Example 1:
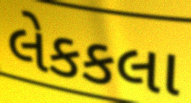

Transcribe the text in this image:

લેકકલા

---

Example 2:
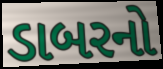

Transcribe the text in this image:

ડાબરનો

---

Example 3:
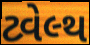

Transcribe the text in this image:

ટ્વેલ્થ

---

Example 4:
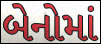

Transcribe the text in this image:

બેનોમાં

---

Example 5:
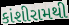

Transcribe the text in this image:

કાંશીરામથી